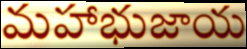
మహాభుజాయ